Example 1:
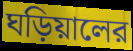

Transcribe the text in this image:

ঘড়িয়ালের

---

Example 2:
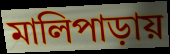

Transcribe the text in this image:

মালিপাড়ায়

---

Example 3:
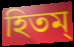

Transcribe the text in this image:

হিতম্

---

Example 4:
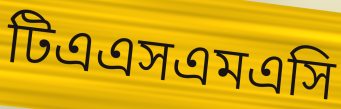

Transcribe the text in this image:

টিএএসএমএসি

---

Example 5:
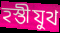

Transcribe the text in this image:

হস্তীযুথ